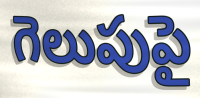
గెలుపుపై